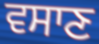
ਵਸਾਣ